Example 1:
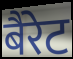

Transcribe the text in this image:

बैरेट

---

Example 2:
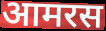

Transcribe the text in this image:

आमरस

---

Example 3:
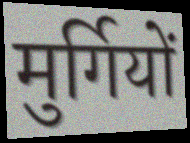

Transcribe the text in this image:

मुर्गियों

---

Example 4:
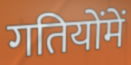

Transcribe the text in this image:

गतियोंमें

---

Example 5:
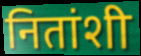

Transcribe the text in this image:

नितांशी